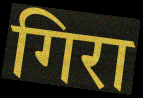
गिरा